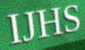
IJHS